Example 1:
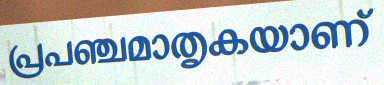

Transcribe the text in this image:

പ്രപഞ്ചമാതൃകയാണ്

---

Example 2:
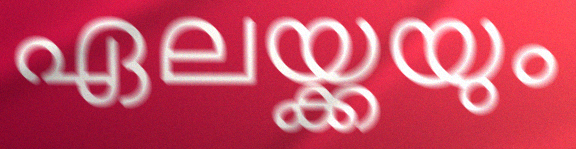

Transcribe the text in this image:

ഏലയ്ക്കയും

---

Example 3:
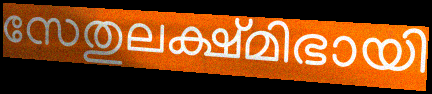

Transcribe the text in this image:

സേതുലക്ഷ്മിഭായി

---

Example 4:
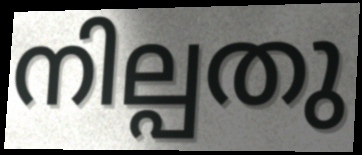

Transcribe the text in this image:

നില്പതു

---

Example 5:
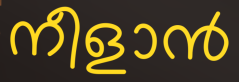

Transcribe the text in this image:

നീളാൻ